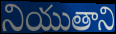
నియుతాని